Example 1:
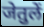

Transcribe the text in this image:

जेतुलें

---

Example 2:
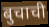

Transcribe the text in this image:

बुचाची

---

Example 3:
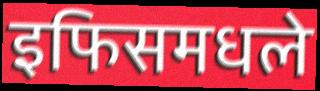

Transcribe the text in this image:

इफिसमधले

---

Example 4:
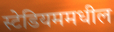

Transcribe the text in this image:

स्टेडियममधील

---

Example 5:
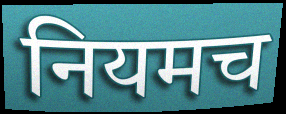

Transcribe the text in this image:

नियमच